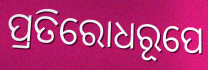
ପ୍ରତିରୋଧରୂପେ